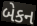
બેકન